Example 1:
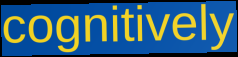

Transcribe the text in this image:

cognitively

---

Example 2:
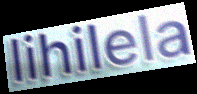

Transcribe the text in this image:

lihilela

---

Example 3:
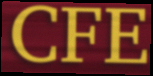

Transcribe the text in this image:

CFE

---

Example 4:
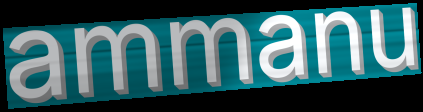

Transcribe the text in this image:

ammanu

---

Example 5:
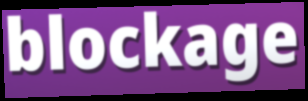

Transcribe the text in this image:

blockage